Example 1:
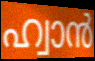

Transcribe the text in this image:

ഹ്വാൻ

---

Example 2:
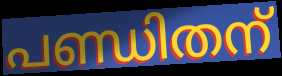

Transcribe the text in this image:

പണ്ഡിതന്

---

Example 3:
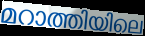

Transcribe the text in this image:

മറാത്തിയിലെ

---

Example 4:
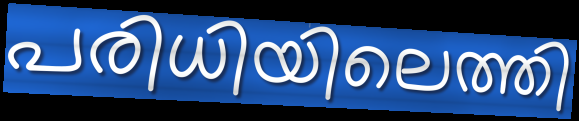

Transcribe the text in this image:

പരിധിയിലെത്തി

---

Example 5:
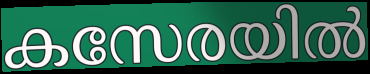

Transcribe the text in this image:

കസേരയിൽ